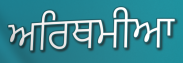
ਅਰਿਥਮੀਆ